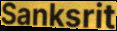
Sanksrit